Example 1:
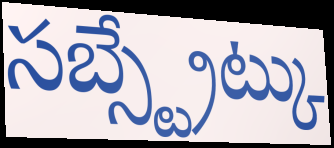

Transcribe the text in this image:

సబ్స్ట్రేట్కు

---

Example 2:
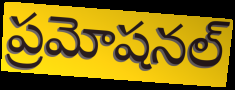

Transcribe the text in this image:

ప్రమోషనల్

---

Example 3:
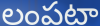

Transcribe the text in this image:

లంపటా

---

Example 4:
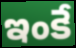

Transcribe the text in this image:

ఇంకే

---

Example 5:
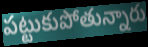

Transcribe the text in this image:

పట్టుకుపోతున్నారు